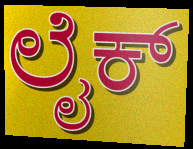
ಲೈಕ್